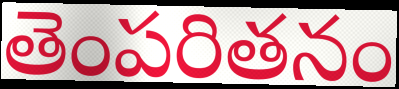
తెంపరితనం